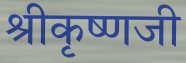
श्रीकृष्णजी